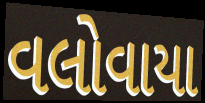
વલોવાયા